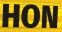
HON